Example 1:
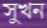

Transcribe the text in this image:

সুখন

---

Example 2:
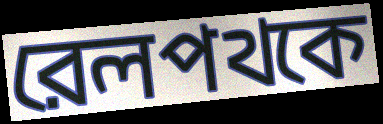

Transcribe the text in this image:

রেলপথকে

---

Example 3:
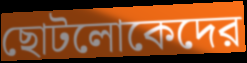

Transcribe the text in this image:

ছোটলোকেদের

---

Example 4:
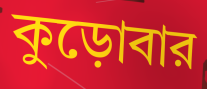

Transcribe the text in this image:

কুড়োবার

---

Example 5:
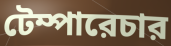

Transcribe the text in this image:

টেম্পারেচার